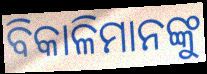
ବିକାଳିମାନଙ୍କୁ